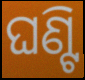
ଘଣ୍ଟି